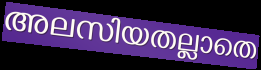
അലസിയതല്ലാതെ